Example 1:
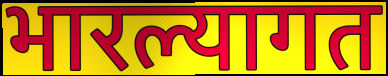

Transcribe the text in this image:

भारल्यागत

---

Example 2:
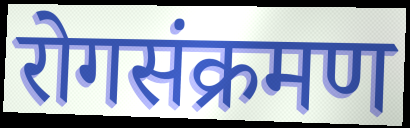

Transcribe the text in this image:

रोगसंक्रमण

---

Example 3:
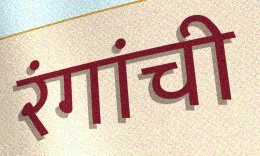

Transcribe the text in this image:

रंगांची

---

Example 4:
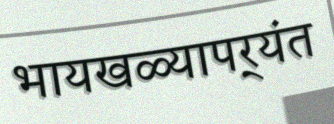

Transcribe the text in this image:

भायखळ्यापर्यंत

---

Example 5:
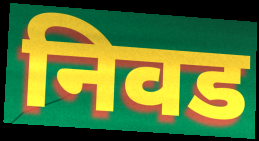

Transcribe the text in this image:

निवड